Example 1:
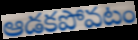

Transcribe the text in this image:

ఆడకపోవటం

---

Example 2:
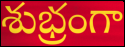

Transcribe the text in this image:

శుభ్రంగా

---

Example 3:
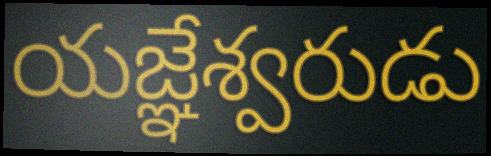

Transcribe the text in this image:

యజ్ఞేశ్వరుడు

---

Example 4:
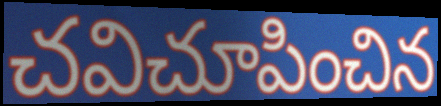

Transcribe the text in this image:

చవిచూపించిన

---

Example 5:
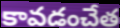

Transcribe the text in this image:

కావడంచేత